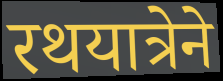
रथयात्रेने